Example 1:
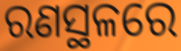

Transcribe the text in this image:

ରଣସ୍ଥଳରେ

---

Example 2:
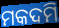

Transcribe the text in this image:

ମକଦମି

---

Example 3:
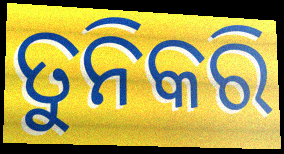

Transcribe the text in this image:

ତୁନିକରି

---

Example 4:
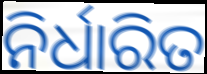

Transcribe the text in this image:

ନିର୍ଧାରିତ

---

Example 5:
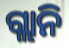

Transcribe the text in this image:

ଗ୍ଲାନି